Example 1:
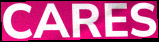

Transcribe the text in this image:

CARES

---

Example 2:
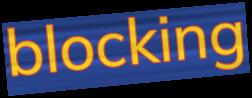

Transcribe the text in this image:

blocking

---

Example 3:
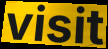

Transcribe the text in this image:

visit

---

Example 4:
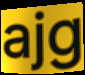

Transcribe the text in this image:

ajg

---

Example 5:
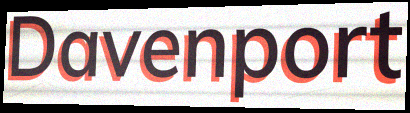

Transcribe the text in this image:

Davenport